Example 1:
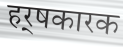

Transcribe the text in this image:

हर्षकारक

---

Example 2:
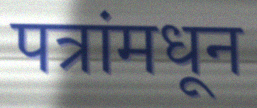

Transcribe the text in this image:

पत्रांमधून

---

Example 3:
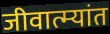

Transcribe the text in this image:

जीवात्म्यांत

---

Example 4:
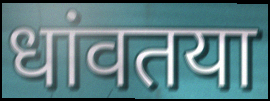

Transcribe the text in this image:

धांवतया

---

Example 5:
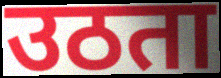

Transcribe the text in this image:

उठता